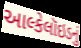
આલ્કેલૉઇડનું